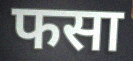
फसा